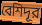
বেশিদূর